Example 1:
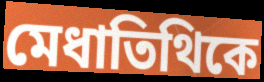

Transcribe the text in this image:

মেধাতিথিকে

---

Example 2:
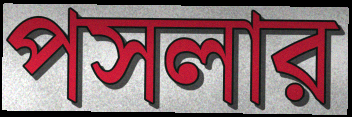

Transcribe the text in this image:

পসলার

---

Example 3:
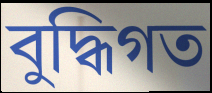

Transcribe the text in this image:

বুদ্ধিগত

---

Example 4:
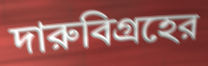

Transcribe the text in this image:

দারুবিগ্রহের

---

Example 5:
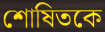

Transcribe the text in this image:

শোষিতকে